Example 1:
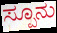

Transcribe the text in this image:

ಸ್ಪೂನು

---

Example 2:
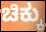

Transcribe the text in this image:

ಚಿಕ್ಕು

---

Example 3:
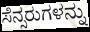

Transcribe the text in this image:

ಸೆನ್ಸರುಗಳನ್ನು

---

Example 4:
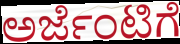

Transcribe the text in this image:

ಅರ್ಜೆಂಟಿಗೆ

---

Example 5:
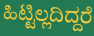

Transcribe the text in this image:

ಹಿಟ್ಟಿಲ್ಲದಿದ್ದರೆ